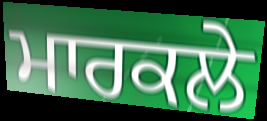
ਮਾਰਕਲੇ